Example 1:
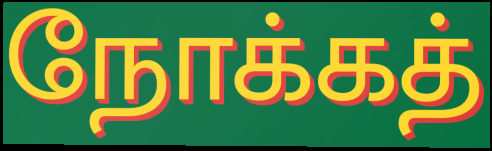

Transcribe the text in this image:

நோக்கத்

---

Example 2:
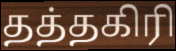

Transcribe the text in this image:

தத்தகிரி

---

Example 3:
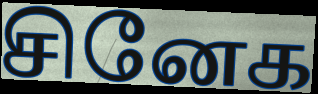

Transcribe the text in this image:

சினேக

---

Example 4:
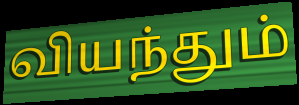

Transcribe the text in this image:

வியந்தும்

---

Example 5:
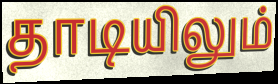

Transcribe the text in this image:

தாடியிலும்